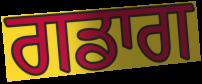
ਗਡਾਗ